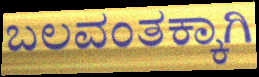
ಬಲವಂತಕ್ಕಾಗಿ